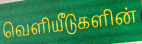
வெளியீடுகளின்